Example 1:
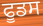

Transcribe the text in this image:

ਫੂਡਸ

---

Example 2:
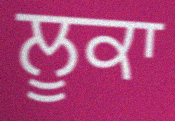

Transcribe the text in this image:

ਲੂਕਾ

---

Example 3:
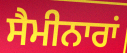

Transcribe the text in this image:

ਸੈਮੀਨਾਰਾਂ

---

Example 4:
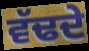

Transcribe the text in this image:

ਵੱਢਦੇ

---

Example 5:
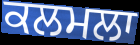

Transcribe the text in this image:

ਕਲਮਲਾ